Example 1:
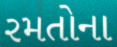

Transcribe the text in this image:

રમતોના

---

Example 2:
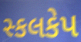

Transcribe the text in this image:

સ્કલકેપ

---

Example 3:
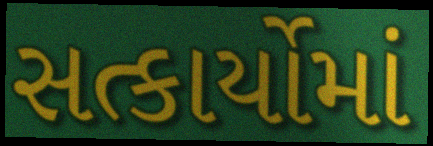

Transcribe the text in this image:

સત્કાર્યોમાં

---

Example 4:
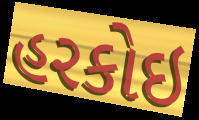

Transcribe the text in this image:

હરકોઇ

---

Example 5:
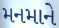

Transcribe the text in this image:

મનમાને